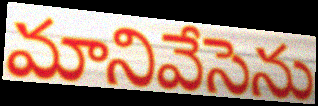
మానివేసెను